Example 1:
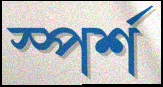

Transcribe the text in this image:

স্পর্শ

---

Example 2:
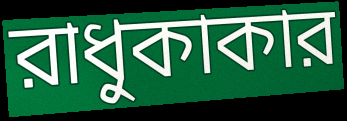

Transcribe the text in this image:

রাধুকাকার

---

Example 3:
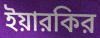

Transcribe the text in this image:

ইয়ারকির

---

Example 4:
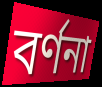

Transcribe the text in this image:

বর্ণনা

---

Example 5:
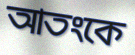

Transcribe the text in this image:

আতংকে